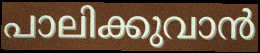
പാലിക്കുവാൻ